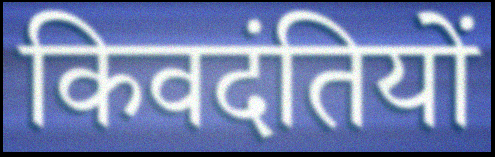
किवदंतियों